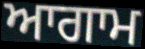
ਆਗਾਮ